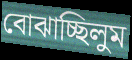
বোঝাচ্ছিলুম